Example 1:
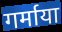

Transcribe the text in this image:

गर्माया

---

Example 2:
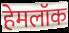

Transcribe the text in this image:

हेमलॉक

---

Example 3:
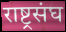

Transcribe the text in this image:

राष्ट्रसंघ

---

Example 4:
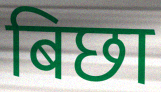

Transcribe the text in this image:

बिछा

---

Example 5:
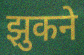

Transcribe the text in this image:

झुकने